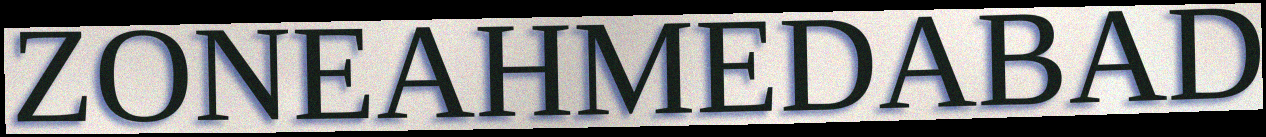
ZONEAHMEDABAD